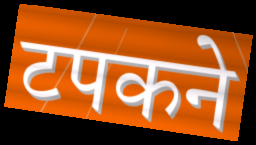
टपकने